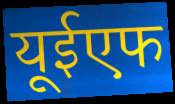
यूईएफ